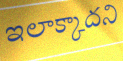
ఇలాక్కాదని